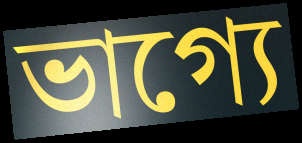
ভাগ্যে